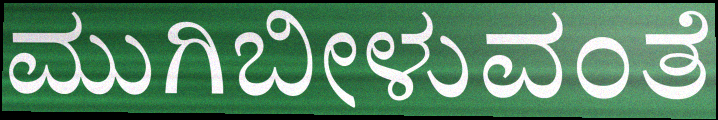
ಮುಗಿಬೀಳುವಂತೆ